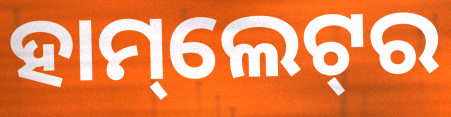
ହାମ୍‌ଲେଟ୍‌ର